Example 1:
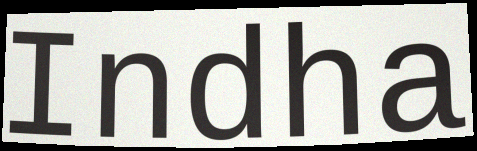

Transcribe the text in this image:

Indha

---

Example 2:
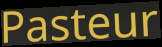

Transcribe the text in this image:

Pasteur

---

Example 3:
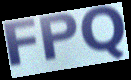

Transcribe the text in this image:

FPQ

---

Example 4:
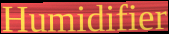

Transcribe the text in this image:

Humidifier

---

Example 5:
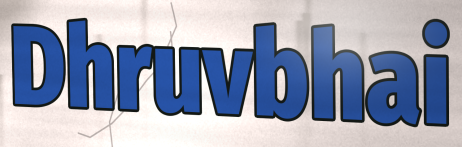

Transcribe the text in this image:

Dhruvbhai